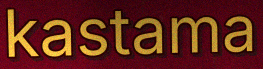
kastama